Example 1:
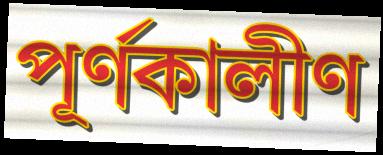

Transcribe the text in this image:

পূর্ণকালীণ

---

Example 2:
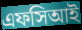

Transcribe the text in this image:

এফসিআই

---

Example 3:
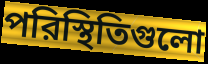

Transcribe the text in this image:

পরিস্থিতিগুলো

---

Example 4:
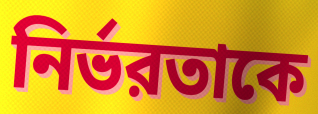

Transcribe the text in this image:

নির্ভরতাকে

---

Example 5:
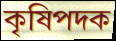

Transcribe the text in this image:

কৃষিপদক